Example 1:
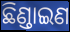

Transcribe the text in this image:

ଛିଣ୍ଡାଇଣ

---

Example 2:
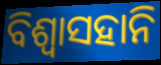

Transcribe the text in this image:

ବିଶ୍ବାସହାନି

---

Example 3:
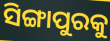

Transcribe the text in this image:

ସିଙ୍ଗାପୁରକୁ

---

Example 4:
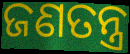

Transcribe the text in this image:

ଜଣତନ୍ତ୍ର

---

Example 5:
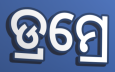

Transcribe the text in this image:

ଡ୍ରମ୍ରେ